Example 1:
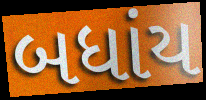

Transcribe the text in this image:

બધાંય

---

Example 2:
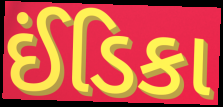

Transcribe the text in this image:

ઈંડિકા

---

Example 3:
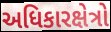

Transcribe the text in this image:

અધિકારક્ષેત્રો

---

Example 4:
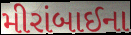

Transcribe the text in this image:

મીરાંબાઈના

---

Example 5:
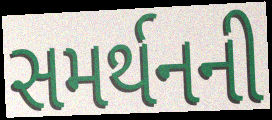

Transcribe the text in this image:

સમર્થનની